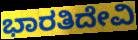
ಭಾರತಿದೇವಿ